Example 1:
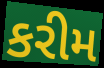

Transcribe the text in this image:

કરીમ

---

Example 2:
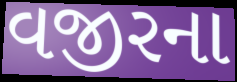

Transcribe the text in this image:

વજીરના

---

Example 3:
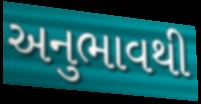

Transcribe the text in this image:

અનુભાવથી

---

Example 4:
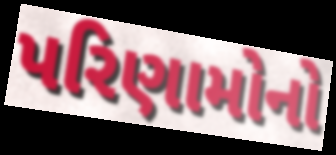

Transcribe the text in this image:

પરિણામોનો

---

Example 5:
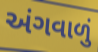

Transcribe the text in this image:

અંગવાળું